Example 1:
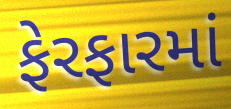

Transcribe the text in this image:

ફેરફારમાં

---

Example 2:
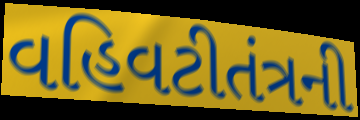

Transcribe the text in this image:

વહિવટીતંત્રની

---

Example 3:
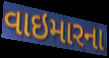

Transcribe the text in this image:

વાઇમારના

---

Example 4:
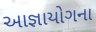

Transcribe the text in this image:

આજ્ઞાયોગના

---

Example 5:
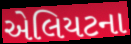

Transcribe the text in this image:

એલિયટના